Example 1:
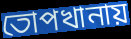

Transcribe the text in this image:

তোপখানায়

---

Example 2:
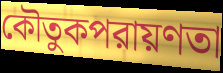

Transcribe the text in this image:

কৌতুকপরায়ণতা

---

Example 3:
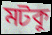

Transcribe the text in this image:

মটকু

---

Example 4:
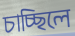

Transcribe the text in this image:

চাচ্ছিলে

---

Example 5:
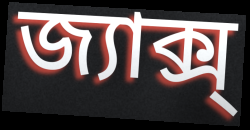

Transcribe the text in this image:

জ্যাক্স্